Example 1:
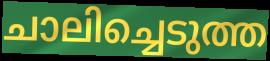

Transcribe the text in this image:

ചാലിച്ചെടുത്ത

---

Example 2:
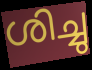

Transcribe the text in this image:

ശിച്ചു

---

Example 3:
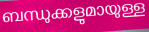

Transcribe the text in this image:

ബന്ധുക്കളുമായുള്ള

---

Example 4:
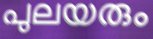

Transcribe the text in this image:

പുലയരും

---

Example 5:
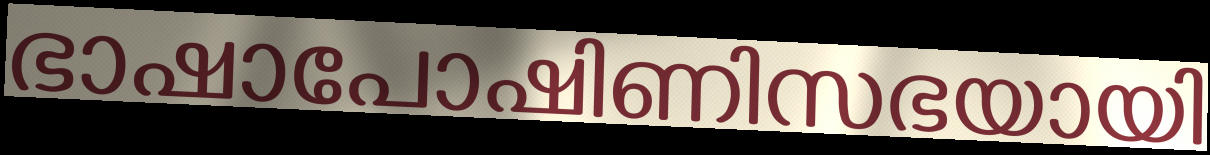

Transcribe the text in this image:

ഭാഷാപോഷിണിസഭയായി